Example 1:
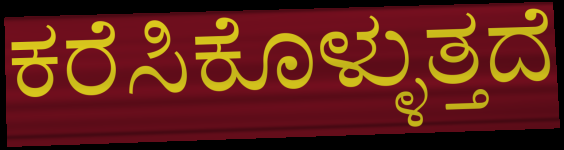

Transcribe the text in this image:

ಕರೆಸಿಕೊಳ್ಳುತ್ತದೆ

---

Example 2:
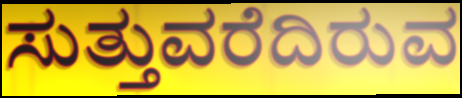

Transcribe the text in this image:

ಸುತ್ತುವರೆದಿರುವ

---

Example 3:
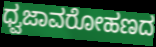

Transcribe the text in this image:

ಧ್ವಜಾವರೋಹಣದ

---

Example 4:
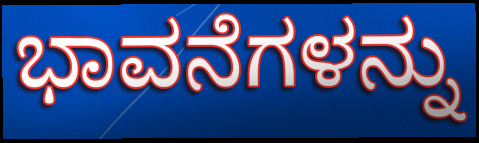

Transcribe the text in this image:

ಭಾವನೆಗಳನ್ನು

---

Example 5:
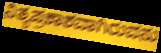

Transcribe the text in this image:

ನಿತ್ಯಪ್ರಕಾಶವಾಗಿರುವನು